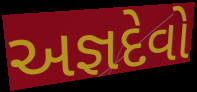
અજ્ઞદેવો